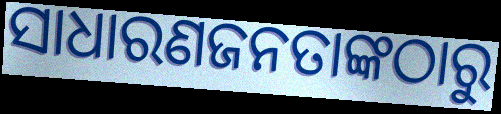
ସାଧାରଣଜନତାଙ୍କଠାରୁ